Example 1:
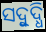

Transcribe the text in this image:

ସଦ୍ବୁଦ୍ଧି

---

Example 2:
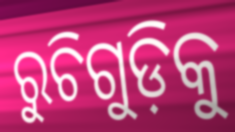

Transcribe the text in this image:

ରୁଚିଗୁଡ଼ିକୁ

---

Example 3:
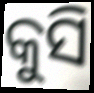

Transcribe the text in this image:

କୁସି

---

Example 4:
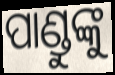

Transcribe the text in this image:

ପାଣ୍ଡୁଙ୍କୁ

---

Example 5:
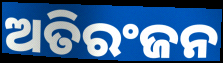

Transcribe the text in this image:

ଅତିରଂଜନ